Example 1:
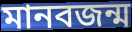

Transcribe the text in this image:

মানবজন্ম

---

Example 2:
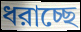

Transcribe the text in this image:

ধরাচ্ছে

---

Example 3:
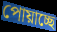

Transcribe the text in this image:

পোয়াচ্ছে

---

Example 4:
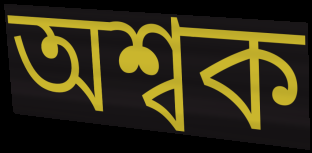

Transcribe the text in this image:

অশ্বক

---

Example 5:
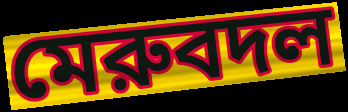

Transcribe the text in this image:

মেরুবদল